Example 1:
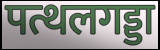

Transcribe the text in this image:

पत्थलगड्डा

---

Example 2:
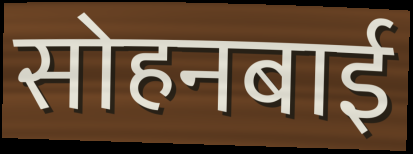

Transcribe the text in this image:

सोहनबाई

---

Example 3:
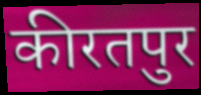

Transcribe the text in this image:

कीरतपुर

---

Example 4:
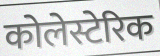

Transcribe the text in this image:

कोलेस्टेरिक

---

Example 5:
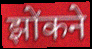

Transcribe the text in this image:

झोंकने